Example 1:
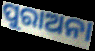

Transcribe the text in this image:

ପୁରାଅନା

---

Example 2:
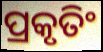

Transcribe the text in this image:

ପ୍ରକୃତିଂ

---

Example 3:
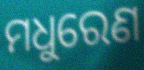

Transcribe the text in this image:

ମଧୁରେଣ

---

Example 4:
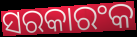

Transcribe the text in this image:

ସରକାରଂକ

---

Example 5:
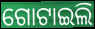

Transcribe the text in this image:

ଗୋଟାଇଲି